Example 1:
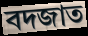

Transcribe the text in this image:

বদজাত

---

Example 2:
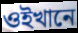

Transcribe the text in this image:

ওইখানে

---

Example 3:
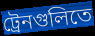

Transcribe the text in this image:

ট্রেনগুলিতে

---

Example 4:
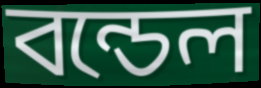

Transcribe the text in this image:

বন্ডেল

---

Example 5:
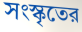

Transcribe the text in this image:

সংস্কৃতের